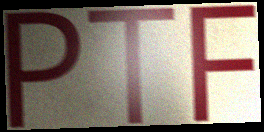
PTF